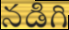
నడిగి